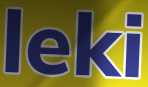
leki